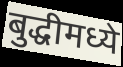
बुद्धीमध्ये